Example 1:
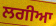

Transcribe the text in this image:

ਲਗੀਆ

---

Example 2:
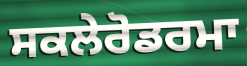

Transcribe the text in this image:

ਸਕਲੇਰੋਡਰਮਾ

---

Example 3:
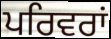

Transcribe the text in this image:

ਪਰਿਵਰਾਂ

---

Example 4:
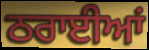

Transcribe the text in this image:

ਠਰਾਈਆਂ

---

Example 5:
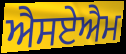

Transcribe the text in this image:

ਐਸਏਐਮ